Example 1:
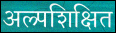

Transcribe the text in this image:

अल्पशिक्षित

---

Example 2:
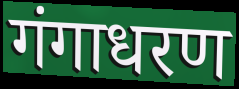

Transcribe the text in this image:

गंगाधरण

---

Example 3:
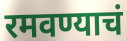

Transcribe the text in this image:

रमवण्याचं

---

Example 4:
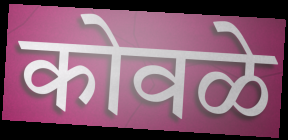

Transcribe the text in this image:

कोवळे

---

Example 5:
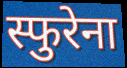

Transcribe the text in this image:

स्फुरेना